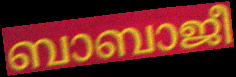
ബാബാജീ